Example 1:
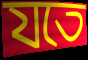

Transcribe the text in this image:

যতে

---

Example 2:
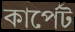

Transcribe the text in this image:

কাৰ্পেট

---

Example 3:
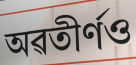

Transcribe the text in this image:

অৱতীৰ্ণও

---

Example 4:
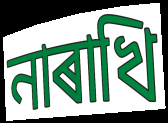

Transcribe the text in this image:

নাৰাখি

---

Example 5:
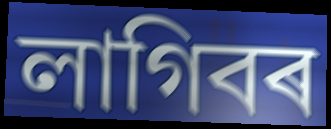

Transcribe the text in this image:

লাগিবৰ